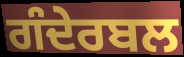
ਗੰਦੇਰਬਲ